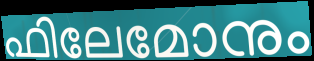
ഫിലേമോനും